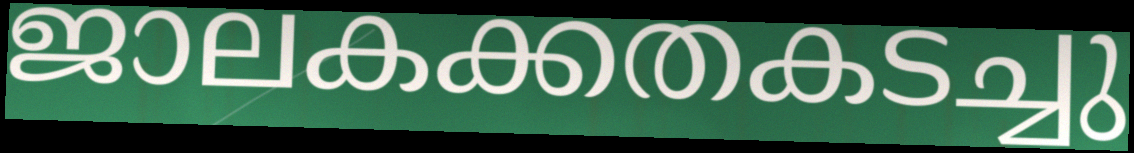
ജാലകക്കതകടച്ചു